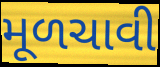
મૂળચાવી